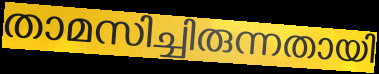
താമസിച്ചിരുന്നതായി